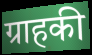
ग्राहकी